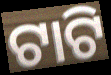
ଟାଟି